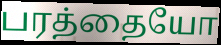
பரத்தையோ